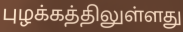
புழக்கத்திலுள்ளது